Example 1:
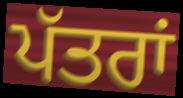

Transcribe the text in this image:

ਪੱਤਰਾਂ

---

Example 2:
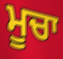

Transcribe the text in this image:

ਮੂਚਾ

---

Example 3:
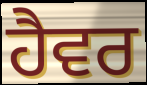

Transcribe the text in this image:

ਹੈਵਰ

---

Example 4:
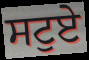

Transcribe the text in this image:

ਸਟੁਏ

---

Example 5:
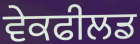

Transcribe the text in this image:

ਵੇਕਫੀਲਡ